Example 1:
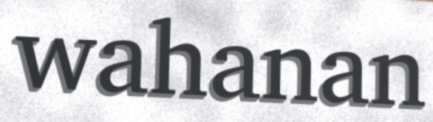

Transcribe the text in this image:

wahanan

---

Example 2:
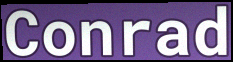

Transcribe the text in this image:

Conrad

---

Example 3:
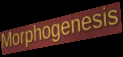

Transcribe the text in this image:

Morphogenesis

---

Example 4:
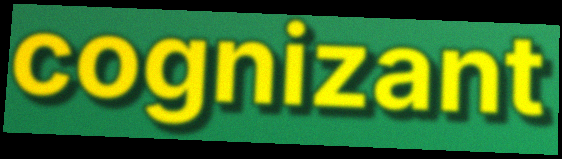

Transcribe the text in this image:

cognizant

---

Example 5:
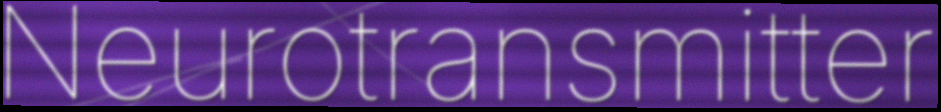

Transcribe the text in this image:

Neurotransmitter